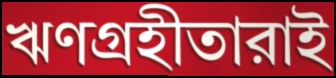
ঋণগ্রহীতারাই